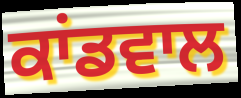
ਕਾਂਡਵਾਲ